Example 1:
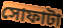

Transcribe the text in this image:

সোফাটা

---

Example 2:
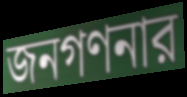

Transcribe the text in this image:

জনগণনার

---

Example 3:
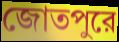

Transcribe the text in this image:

জোতপুরে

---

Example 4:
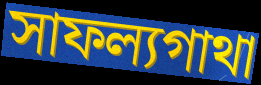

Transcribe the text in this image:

সাফল্যগাথা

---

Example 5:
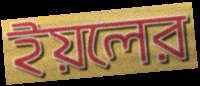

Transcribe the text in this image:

ইয়লের